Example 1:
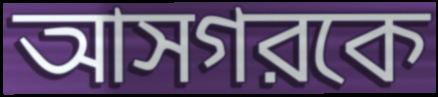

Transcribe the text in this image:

আসগরকে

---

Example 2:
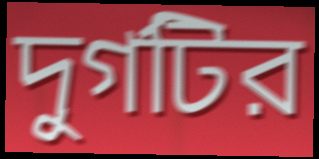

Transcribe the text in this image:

দুর্গটির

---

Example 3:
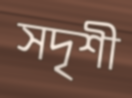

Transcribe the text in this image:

সদৃশী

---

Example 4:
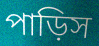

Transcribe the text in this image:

পাড়িস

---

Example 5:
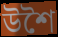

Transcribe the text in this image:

উশৈ